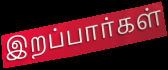
இறப்பார்கள்